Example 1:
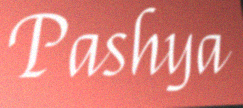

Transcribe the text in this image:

Pashya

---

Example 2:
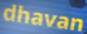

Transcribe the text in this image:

dhavan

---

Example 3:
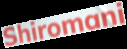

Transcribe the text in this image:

Shiromani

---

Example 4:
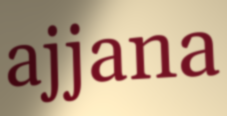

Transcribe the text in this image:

ajjana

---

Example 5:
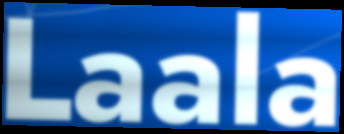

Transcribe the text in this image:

Laala